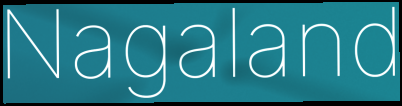
Nagaland